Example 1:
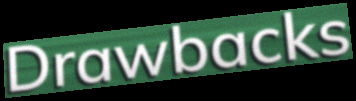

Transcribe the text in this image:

Drawbacks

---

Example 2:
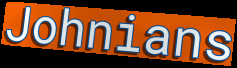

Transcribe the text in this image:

Johnians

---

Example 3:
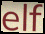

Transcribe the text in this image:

elf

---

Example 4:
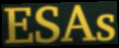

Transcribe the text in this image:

ESAs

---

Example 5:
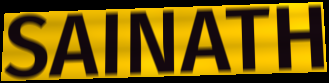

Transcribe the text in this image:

SAINATH